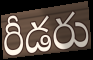
రీడరు